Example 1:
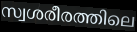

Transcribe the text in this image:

സ്വശരീരത്തിലെ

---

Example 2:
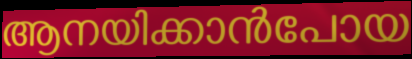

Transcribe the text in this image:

ആനയിക്കാൻപോയ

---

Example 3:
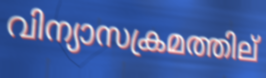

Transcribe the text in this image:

വിന്യാസക്രമത്തില്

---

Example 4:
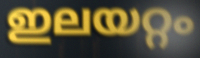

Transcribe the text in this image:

ഇലയറ്റം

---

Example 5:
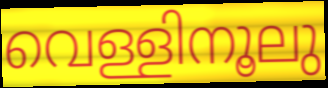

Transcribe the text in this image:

വെള്ളിനൂലു